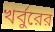
খর্বুরের